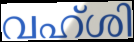
വഹ്ശി